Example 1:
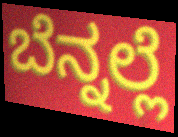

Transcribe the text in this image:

ಬೆನ್ನಲ್ಲೆ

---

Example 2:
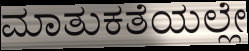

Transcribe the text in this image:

ಮಾತುಕತೆಯಲ್ಲೇ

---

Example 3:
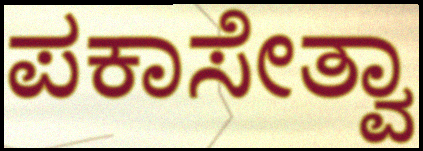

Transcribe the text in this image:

ಪಕಾಸೇತ್ವಾ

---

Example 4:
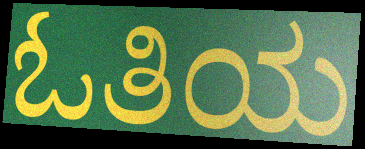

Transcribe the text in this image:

ಓತಿಯ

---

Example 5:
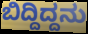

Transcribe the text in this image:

ಬಿದ್ದಿದ್ದನು